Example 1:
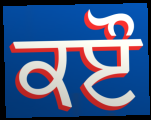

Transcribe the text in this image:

ਕੲੌ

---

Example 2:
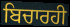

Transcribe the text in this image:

ਬਿਚਾਰਹੀ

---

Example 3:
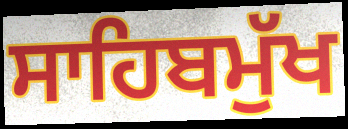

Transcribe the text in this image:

ਸਾਹਿਬਮੁੱਖ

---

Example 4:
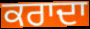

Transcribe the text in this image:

ਕਰਾਦਾ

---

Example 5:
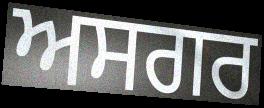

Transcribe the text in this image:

ਅਸਗਰ